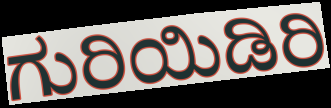
ಗುರಿಯಿಡಿರಿ